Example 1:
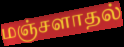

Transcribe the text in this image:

மஞ்சளாதல்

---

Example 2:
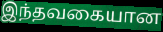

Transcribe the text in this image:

இந்தவகையான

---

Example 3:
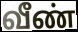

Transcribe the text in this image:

வீண்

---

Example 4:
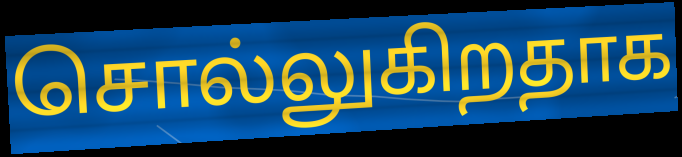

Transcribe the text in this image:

சொல்லுகிறதாக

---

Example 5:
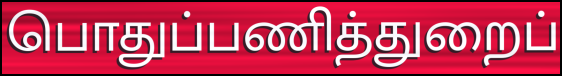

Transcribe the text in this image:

பொதுப்பணித்துறைப்